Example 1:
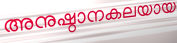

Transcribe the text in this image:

അനുഷ്ഠാനകലയായ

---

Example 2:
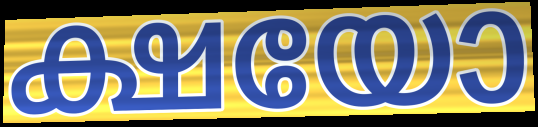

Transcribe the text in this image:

ക്ഷയോ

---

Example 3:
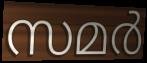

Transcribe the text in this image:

സമർ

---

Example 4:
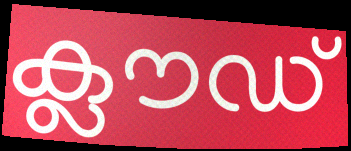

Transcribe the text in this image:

ക്ലൗഡ്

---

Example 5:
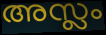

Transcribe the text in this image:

അസ്ലം